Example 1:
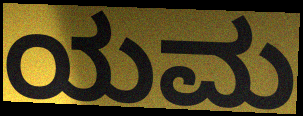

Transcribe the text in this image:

ಯಮ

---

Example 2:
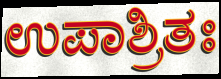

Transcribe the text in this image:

ಉಪಾಶ್ರಿತಃ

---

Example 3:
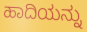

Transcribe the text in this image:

ಹಾದಿಯನ್ನು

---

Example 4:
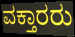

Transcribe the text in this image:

ವಕ್ತಾರರು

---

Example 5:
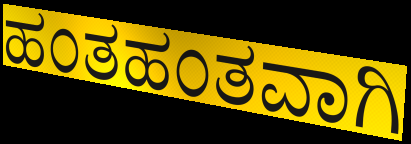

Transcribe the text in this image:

ಹಂತಹಂತವಾಗಿ